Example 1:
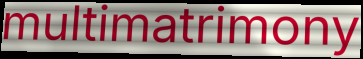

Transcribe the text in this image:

multimatrimony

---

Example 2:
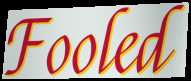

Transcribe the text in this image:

Fooled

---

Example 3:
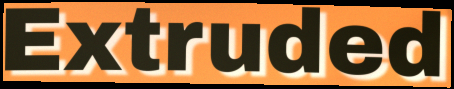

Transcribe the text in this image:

Extruded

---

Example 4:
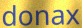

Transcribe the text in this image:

donax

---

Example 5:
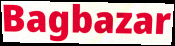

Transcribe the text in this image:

Bagbazar